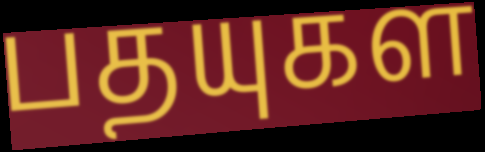
பதயுகள